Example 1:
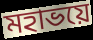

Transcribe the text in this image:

মহাভয়ে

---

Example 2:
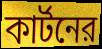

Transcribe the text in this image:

কার্টনের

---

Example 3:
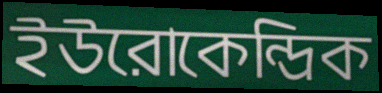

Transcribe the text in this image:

ইউরোকেন্দ্রিক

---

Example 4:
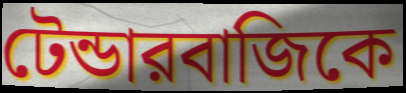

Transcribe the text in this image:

টেন্ডারবাজিকে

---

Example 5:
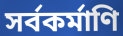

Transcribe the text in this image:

সর্বকর্মাণি